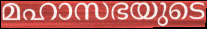
മഹാസഭയുടെ